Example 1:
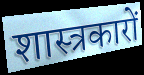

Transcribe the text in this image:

शास्त्रकारों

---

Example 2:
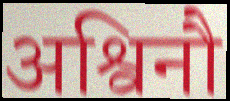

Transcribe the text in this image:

अश्विनौ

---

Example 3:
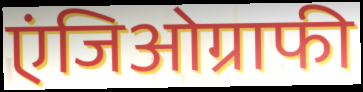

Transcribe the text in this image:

एंजिओग्राफी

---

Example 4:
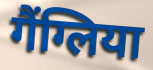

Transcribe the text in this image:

गैंग्लिया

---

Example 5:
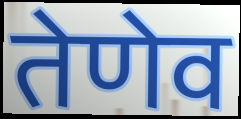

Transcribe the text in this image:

तेणेव